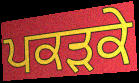
ਪਕੜਕੇ